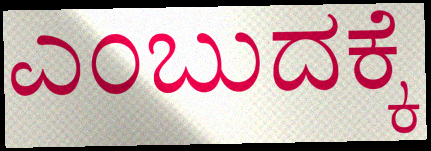
ಎಂಬುದಕ್ಕೆ